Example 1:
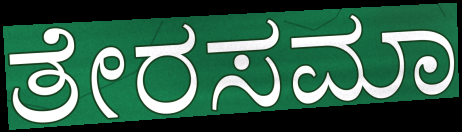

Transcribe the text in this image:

ತೇರಸಮಾ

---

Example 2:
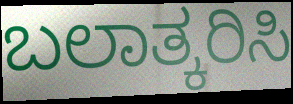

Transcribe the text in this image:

ಬಲಾತ್ಕರಿಸಿ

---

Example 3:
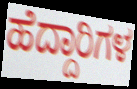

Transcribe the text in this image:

ಹೆದ್ದಾರಿಗಳ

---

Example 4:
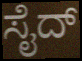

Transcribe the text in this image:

ಸೈದ್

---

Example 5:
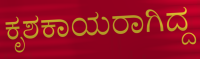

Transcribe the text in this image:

ಕೃಶಕಾಯರಾಗಿದ್ದ